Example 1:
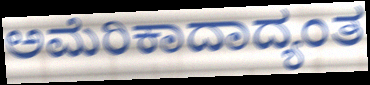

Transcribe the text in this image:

ಅಮೆರಿಕಾದಾದ್ಯಂತ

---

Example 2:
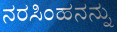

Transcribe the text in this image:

ನರಸಿಂಹನನ್ನು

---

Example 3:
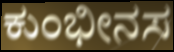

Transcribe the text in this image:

ಕುಂಭೀನಸ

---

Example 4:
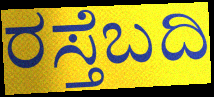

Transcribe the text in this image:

ರಸ್ತೆಬದಿ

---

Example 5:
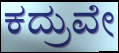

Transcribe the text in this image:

ಕದ್ರುವೇ